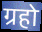
ग्रहो